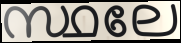
സ്ഥലേ